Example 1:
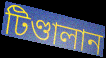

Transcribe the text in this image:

টিণ্ডালান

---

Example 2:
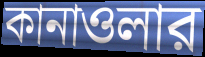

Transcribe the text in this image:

কানাওলার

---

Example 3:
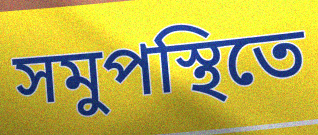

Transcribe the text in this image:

সমুপস্থিতে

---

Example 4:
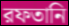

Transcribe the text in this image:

রফতানি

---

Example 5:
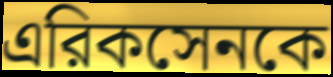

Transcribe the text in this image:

এরিকসেনকে